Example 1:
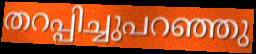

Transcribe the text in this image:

തറപ്പിച്ചുപറഞ്ഞു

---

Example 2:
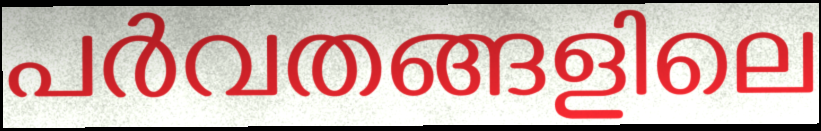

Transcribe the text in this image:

പർവതങ്ങളിലെ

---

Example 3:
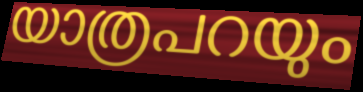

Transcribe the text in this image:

യാത്രപറയും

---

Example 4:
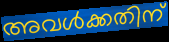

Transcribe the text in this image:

അവൾക്കതിന്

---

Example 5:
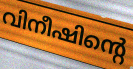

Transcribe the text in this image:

വിനീഷിന്റെ